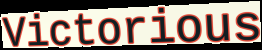
Victorious